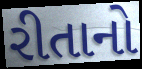
રીતાનો